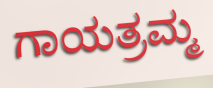
ಗಾಯತ್ರಮ್ಮ